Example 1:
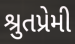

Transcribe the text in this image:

શ્રુતપ્રેમી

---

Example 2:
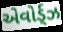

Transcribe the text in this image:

એવોર્ડ્ઝ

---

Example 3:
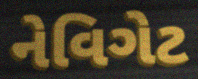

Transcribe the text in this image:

નેવિગેટ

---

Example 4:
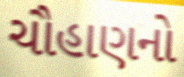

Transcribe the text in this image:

ચૌહાણનો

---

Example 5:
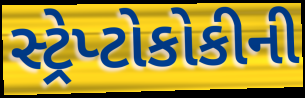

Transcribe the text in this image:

સ્ટ્રેપ્ટોકોકીની